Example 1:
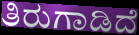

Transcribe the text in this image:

ತಿರುಗಾಡಿದೆ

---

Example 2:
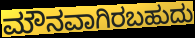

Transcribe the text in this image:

ಮೌನವಾಗಿರಬಹುದು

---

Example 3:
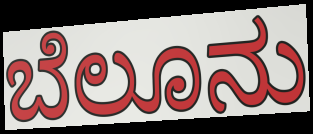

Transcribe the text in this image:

ಬೆಲೂನು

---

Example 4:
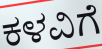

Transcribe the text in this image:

ಕಳವಿಗೆ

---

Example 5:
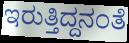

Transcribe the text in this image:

ಇರುತ್ತಿದ್ದನಂತೆ